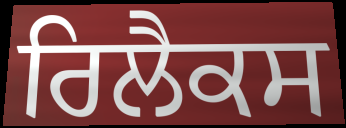
ਰਿਲੈਕਸ